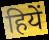
हियें